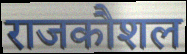
राजकौशल